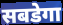
सबडेगा